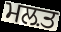
ਮਲ਼ਤ